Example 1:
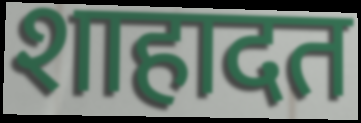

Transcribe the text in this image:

शाहादत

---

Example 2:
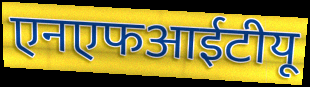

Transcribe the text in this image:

एनएफआईटीयू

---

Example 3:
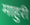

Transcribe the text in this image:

माहुरी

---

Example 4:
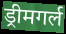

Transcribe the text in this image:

ड्रीमगर्ल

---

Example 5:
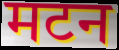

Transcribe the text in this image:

मटन